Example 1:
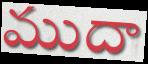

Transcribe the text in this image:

ముదా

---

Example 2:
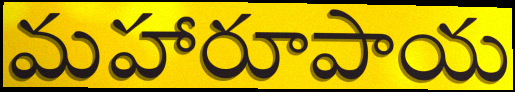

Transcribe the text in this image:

మహారూపాయ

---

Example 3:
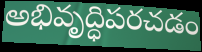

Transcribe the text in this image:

అభివృద్ధిపరచడం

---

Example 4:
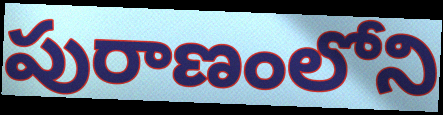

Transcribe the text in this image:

పురాణంలోని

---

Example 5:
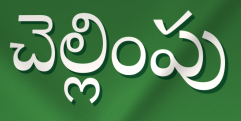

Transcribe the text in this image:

చెల్లింపు